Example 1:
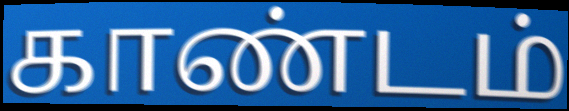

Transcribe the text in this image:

காண்டம்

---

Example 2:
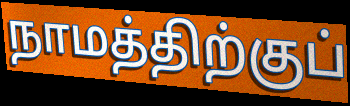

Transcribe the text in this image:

நாமத்திற்குப்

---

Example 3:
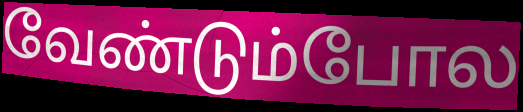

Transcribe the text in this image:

வேண்டும்போல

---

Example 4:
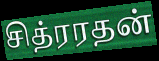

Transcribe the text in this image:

சித்ரரதன்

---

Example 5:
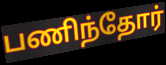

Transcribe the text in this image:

பணிந்தோர்